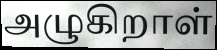
அழுகிறாள்